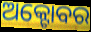
ଅକ୍ଟୋବର